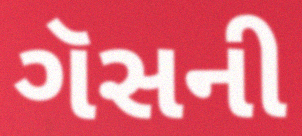
ગૅસની